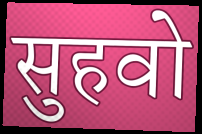
सुहवो